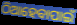
ଠିଆହେବାପାଇଁ